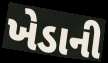
ખેડાની